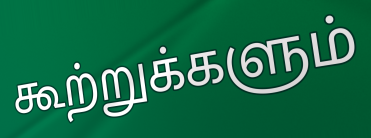
கூற்றுக்களும்